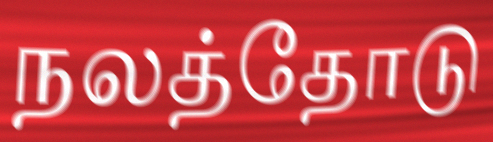
நலத்தோடு